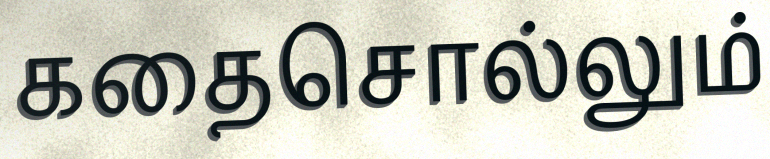
கதைசொல்லும்